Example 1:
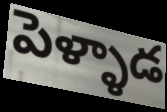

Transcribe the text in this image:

పెళ్ళాడ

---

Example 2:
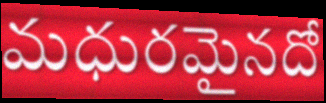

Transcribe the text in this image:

మధురమైనదో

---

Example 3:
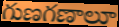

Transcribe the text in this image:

గుణగణాలూ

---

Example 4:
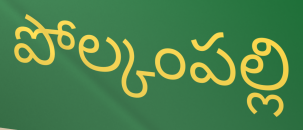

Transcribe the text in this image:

పోల్కంపల్లి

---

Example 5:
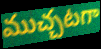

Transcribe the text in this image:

ముచ్చటగా